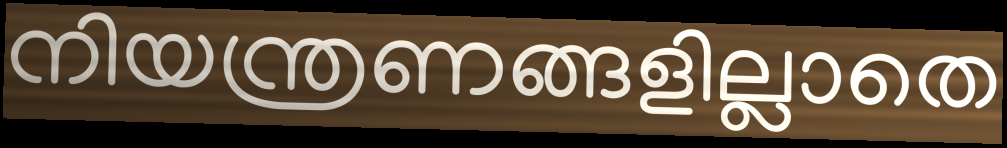
നിയന്ത്രണങ്ങളില്ലാതെ